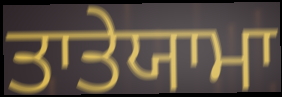
ਤਾਤੇਯਾਮਾ